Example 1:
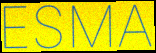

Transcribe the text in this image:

ESMA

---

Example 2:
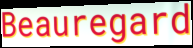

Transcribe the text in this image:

Beauregard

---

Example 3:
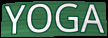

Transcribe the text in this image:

YOGA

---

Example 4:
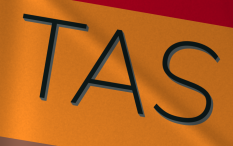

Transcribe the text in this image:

TAS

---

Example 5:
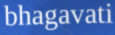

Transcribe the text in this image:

bhagavati